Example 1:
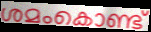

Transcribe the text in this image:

ശമംകൊണ്ട്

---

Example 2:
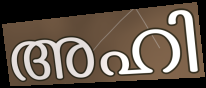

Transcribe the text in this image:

അഹി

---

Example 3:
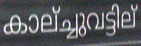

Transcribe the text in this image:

കാല്ച്ചുവട്ടില്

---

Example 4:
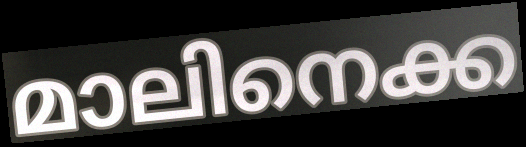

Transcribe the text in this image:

മാലിനെക്ക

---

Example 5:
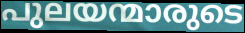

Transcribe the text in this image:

പുലയന്മാരുടെ